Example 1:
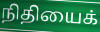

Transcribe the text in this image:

நிதியைக்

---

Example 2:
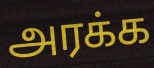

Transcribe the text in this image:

அரக்க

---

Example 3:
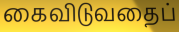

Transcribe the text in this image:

கைவிடுவதைப்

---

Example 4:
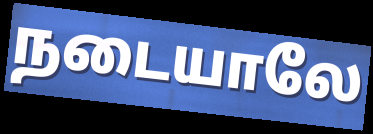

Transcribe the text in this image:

நடையாலே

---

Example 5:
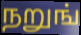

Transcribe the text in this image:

நறுங்